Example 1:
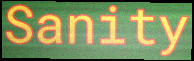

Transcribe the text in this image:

Sanity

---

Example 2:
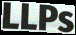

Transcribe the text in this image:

LLPs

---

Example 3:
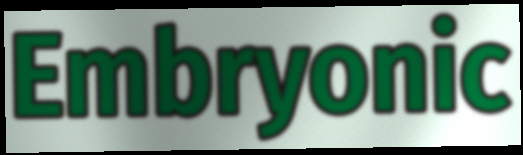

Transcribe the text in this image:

Embryonic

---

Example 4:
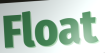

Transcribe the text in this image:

Float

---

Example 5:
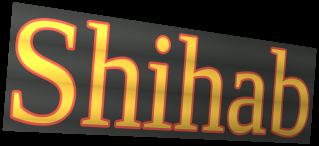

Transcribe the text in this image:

Shihab